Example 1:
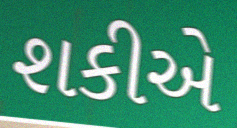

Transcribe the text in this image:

શકીએ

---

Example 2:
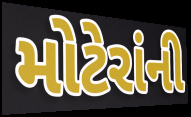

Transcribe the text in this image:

મોટેરાંની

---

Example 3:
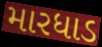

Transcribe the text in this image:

મારધાડ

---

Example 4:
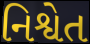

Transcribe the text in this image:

નિશ્વેત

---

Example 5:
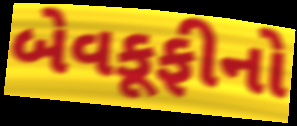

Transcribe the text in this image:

બેવકૂફીનો